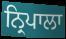
ਨ੍ਰਿਪਾਲਾ